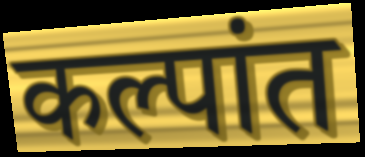
कल्पांत